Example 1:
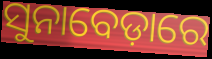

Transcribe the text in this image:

ସୁନାବେଡ଼ାରେ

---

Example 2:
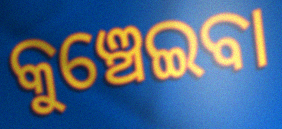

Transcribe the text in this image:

କୁଞ୍ଚେଇବା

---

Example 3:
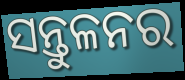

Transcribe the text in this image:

ସନ୍ତୁଳନର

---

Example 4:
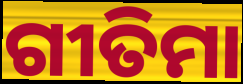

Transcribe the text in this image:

ଗୀତିମା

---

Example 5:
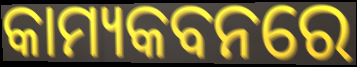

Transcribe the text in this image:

କାମ୍ୟକବନରେ